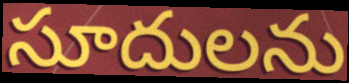
సూదులను